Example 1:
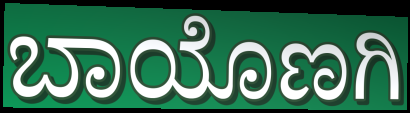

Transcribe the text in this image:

ಬಾಯೊಣಗಿ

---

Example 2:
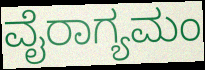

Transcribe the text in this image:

ವೈರಾಗ್ಯಮಂ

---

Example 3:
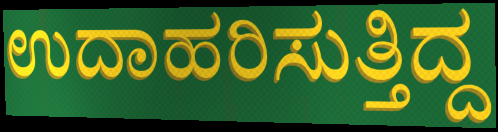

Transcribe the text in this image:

ಉದಾಹರಿಸುತ್ತಿದ್ದ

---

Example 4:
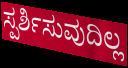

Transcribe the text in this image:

ಸ್ಪರ್ಶಿಸುವುದಿಲ್ಲ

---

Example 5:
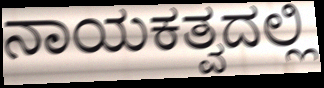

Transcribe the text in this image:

ನಾಯಕತ್ವದಲ್ಲಿ